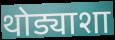
थोड्याशा